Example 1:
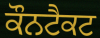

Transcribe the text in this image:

ਕੌਨਟੈਕਟ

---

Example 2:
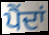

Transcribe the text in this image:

ਪੈਂਦਾਂ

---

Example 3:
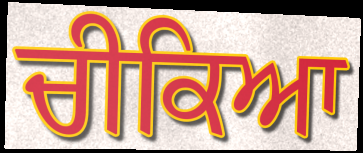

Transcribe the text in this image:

ਚੀਕਿਆ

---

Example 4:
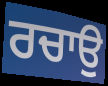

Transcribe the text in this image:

ਰਚਾਉ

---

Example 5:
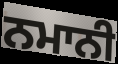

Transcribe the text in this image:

ਨਮਾਨੀ